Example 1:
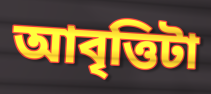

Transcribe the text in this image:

আবৃত্তিটা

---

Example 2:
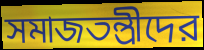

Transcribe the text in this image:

সমাজতন্ত্রীদের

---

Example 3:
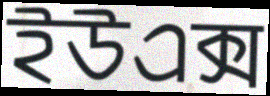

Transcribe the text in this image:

ইউএক্স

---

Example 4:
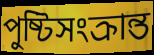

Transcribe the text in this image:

পুষ্টিসংক্রান্ত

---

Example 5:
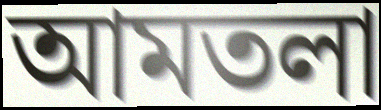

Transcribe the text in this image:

আমতলা